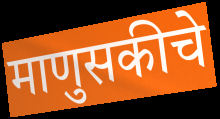
माणुसकीचे